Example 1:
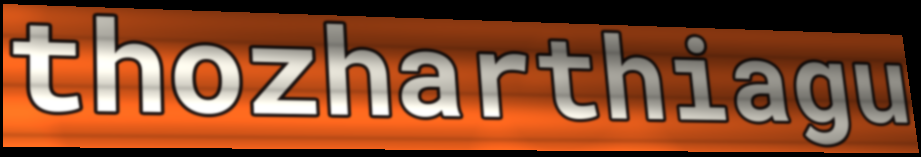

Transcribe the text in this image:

thozharthiagu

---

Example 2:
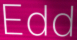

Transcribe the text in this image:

Edd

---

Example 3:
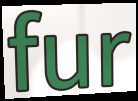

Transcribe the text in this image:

fur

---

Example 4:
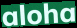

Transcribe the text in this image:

aloha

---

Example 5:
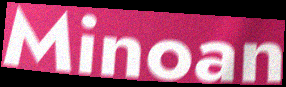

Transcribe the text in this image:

Minoan